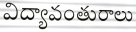
విద్యావంతురాలు